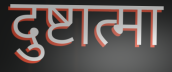
दुष्टात्मा